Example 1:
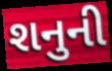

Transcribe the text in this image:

શનુની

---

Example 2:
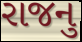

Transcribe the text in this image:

રાજનુ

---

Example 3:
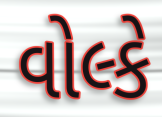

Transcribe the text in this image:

વોલ્કે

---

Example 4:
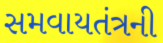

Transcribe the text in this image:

સમવાયતંત્રની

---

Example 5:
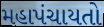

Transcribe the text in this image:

મહાપંચાયતો